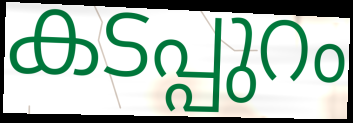
കടപ്പുറം